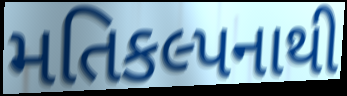
મતિકલ્પનાથી